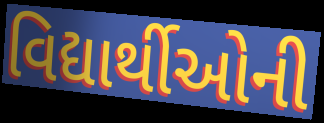
વિદ્યાર્થીઓની